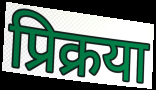
प्रिक्रया